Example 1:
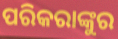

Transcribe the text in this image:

ପରିକରାଙ୍କୁର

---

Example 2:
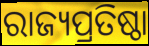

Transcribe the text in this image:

ରାଜ୍ୟପ୍ରତିଷ୍ଠା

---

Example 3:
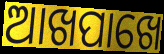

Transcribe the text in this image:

ଆଖପାଖେ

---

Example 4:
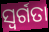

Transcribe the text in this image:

ସ୍ବର୍ଗତା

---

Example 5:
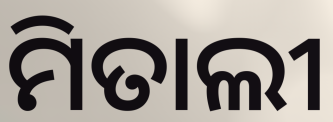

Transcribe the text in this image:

ମିତାଲୀ